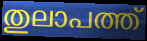
തുലാപത്ത്